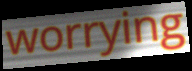
worrying